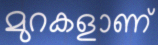
മുറകളാണ്